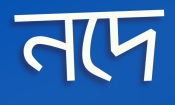
নদে